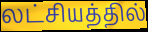
லட்சியத்தில்